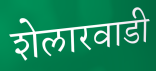
शेलारवाडी